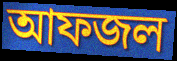
আফজল